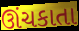
ઊંચકાતા